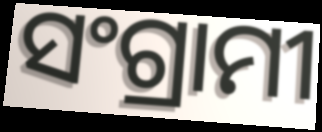
ସଂଗ୍ରାମୀ